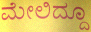
ಮೇಲಿದ್ದೂ